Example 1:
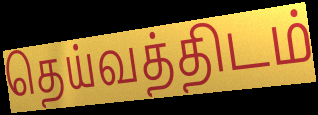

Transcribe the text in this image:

தெய்வத்திடம்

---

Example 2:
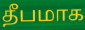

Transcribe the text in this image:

தீபமாக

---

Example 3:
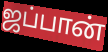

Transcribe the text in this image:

ஜப்பான்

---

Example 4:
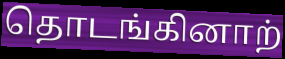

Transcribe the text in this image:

தொடங்கினாற்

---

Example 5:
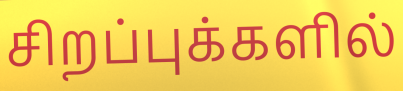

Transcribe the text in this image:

சிறப்புக்களில்